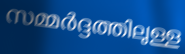
സമ്മർദ്ദത്തിലുള്ള